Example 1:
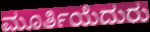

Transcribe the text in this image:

ಮೂರ್ತಿಯೆದುರು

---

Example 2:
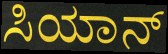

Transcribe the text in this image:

ಸಿಯಾನ್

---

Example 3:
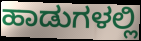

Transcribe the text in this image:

ಹಾಡುಗಳಲ್ಲಿ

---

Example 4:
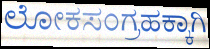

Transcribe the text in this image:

ಲೋಕಸಂಗ್ರಹಕ್ಕಾಗಿ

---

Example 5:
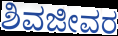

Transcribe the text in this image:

ಶಿವಜೀವರ